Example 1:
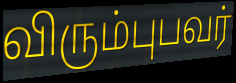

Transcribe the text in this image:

விரும்புபவர்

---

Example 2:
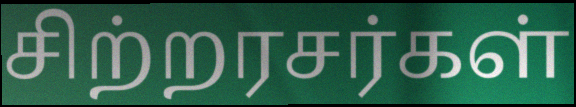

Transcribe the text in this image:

சிற்றரசர்கள்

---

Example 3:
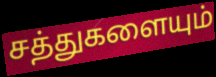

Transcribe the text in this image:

சத்துகளையும்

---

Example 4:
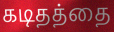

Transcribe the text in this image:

கடிதத்தை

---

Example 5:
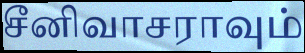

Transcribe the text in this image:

சீனிவாசராவும்